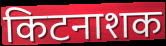
किटनाशक